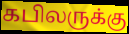
கபிலருக்கு